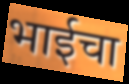
भाईचा